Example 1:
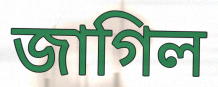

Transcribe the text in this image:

জাগিল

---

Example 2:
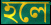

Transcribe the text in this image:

হলে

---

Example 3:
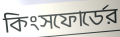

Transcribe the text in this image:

কিংসফোর্ডের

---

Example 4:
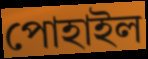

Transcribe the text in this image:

পোহাইল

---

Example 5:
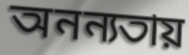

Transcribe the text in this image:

অনন্যতায়